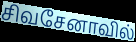
சிவசேனாவில்